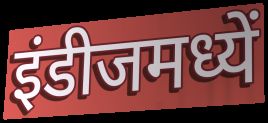
इंडीजमध्यें